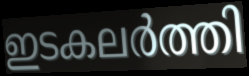
ഇടകലർത്തി